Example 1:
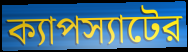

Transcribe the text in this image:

ক্যাপস্যাটের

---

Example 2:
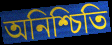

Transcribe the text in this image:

অনিশ্চিতি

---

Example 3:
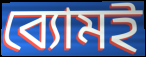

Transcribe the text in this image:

ব্যোমই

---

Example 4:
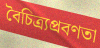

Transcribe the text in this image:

বৈচিত্র্যপ্রবণতা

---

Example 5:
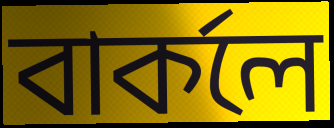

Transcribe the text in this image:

বার্কলে